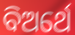
ବିଅର୍ଥେ